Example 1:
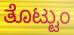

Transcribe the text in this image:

ತೊಟ್ಟುಂ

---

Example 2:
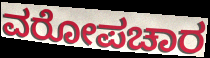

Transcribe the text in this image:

ವರೋಪಚಾರ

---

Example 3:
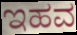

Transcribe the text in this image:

ಇಹವ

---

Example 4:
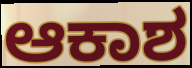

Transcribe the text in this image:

ಆಕಾಶ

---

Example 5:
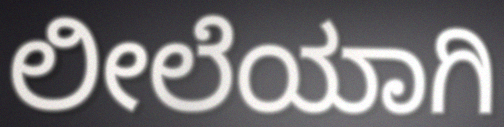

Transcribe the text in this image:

ಲೀಲೆಯಾಗಿ